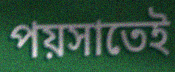
পয়সাতেই